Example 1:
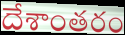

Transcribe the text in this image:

దేశాంతరం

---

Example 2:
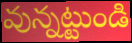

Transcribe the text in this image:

వున్నట్టుండి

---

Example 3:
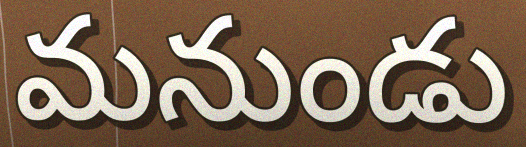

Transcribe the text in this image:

మనుండు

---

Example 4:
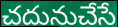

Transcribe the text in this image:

చదునుచేసే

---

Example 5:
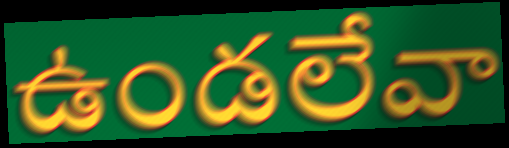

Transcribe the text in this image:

ఉండలేవా